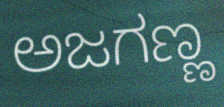
ಅಜಗಣ್ಣ